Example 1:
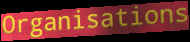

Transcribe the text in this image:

Organisations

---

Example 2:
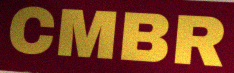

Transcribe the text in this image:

CMBR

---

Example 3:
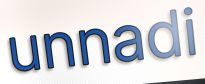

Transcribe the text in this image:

unnadi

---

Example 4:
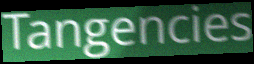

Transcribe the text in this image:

Tangencies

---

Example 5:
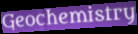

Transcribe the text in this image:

Geochemistry